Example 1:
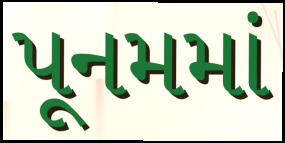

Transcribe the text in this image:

પૂનમમાં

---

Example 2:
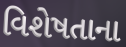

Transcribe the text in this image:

વિશેષતાના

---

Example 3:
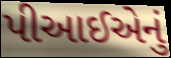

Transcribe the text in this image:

પીઆઈએનું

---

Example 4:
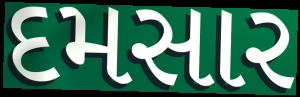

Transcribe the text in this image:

દમસાર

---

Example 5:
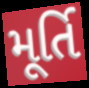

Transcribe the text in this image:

મૂર્તિ